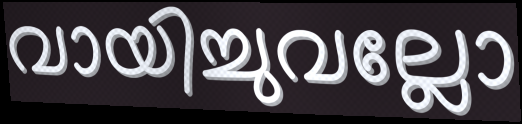
വായിച്ചുവല്ലോ